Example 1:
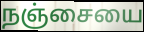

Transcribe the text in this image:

நஞ்சையை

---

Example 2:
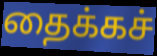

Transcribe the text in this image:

தைக்கச்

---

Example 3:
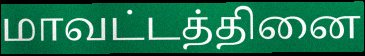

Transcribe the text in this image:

மாவட்டத்தினை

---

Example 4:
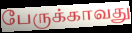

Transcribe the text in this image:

பேருக்காவது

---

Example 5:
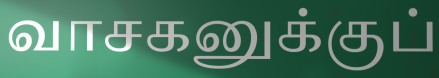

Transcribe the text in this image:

வாசகனுக்குப்